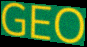
GEO